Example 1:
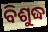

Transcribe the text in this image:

ବିଶୁଦ୍ଧ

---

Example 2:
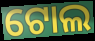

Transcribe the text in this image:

ଟୋଲ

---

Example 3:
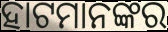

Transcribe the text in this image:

ହାଟମାନଙ୍କର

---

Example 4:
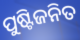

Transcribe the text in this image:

ପୁଷ୍ଟିଜନିତ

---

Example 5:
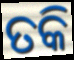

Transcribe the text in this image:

ତକି